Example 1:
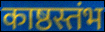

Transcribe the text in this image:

काष्ठस्तंभ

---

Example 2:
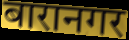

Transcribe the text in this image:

बारानगर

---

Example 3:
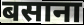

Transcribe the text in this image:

बसाना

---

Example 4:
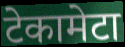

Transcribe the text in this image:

टेकामेटा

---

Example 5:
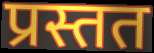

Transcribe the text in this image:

प्रस्तत